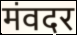
मंवदर